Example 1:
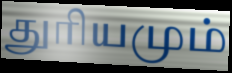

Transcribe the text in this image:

துரியமும்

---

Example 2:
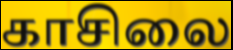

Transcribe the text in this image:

காசிலை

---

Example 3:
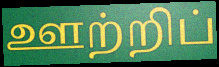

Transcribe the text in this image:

ஊற்றிப்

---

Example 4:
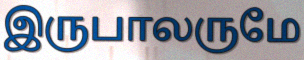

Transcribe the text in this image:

இருபாலருமே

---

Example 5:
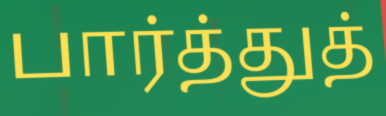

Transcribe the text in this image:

பார்த்துத்